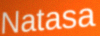
Natasa